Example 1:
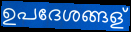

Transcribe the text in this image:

ഉപദേശങ്ങള്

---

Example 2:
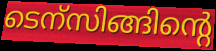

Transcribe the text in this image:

ടെന്സിങ്ങിന്റെ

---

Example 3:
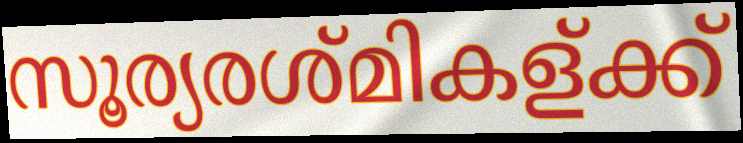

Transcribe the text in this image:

സൂര്യരശ്മികള്ക്ക്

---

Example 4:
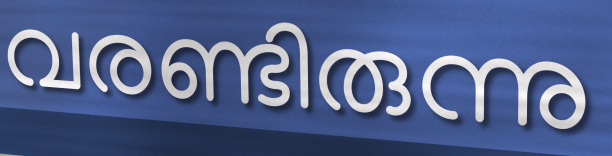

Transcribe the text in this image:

വരണ്ടിരുന്നു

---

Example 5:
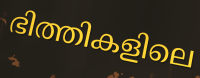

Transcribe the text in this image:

ഭിത്തികളിലെ